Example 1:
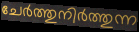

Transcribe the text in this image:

ചേർത്തുനിർത്തുന്ന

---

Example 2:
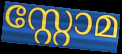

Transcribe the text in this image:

സ്റ്റോമ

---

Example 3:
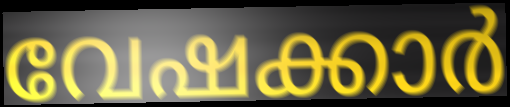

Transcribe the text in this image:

വേഷക്കാർ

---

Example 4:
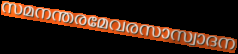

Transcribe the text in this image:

സമനന്തരമേവരസാസ്വാദന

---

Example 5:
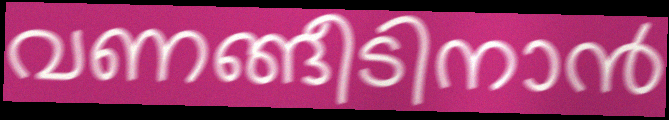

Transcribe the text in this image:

വണങ്ങീടിനാൻ